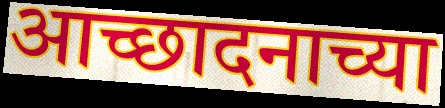
आच्छादनाच्या